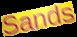
Sands